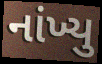
નાંખ્યુ